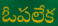
ఓపలేక